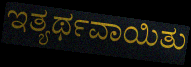
ಇತ್ಯರ್ಥವಾಯಿತು